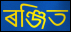
ৰঞ্জিত